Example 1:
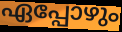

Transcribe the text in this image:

ഏപ്പോഴും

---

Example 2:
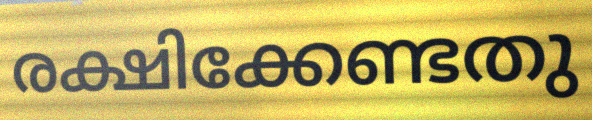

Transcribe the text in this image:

രക്ഷിക്കേണ്ടതു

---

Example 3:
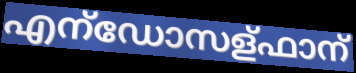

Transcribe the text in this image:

എന്ഡോസള്ഫാന്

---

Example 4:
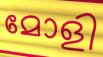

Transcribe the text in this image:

മോളി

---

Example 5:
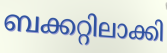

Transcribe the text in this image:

ബക്കറ്റിലാക്കി